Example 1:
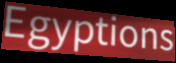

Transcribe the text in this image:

Egyptions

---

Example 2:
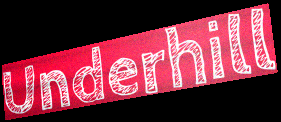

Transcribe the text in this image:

Underhill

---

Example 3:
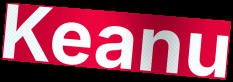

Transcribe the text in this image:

Keanu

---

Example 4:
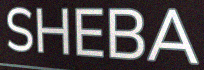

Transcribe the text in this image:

SHEBA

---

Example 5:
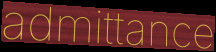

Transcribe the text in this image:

admittance